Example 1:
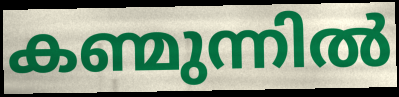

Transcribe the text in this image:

കണ്മുന്നിൽ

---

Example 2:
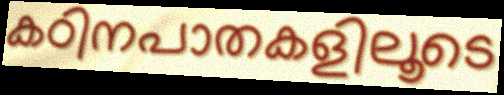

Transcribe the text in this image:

കഠിനപാതകളിലൂടെ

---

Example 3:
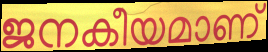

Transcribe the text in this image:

ജനകീയമാണ്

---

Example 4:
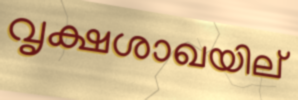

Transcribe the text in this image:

വൃക്ഷശാഖയില്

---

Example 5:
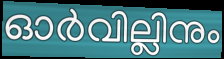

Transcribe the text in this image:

ഓർവില്ലിനും